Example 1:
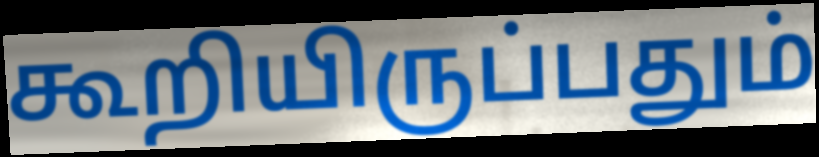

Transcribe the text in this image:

கூறியிருப்பதும்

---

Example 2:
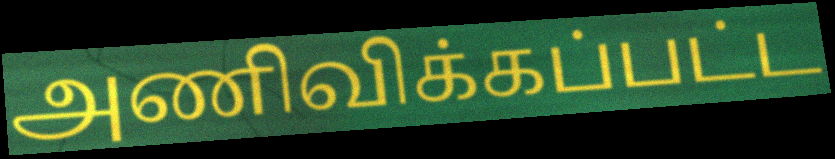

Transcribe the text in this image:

அணிவிக்கப்பட்ட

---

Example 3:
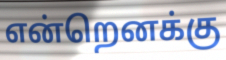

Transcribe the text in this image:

என்றெனக்கு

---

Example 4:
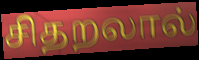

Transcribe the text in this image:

சிதறலால்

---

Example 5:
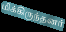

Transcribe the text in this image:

மிக்கிருந்தனர்